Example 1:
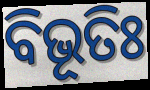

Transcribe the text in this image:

ବିଭୂତିଃ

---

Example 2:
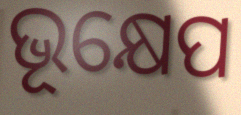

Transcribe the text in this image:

ଭୂକ୍ଷେପ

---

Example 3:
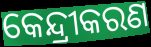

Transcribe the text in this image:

କେନ୍ଦ୍ରୀକରଣ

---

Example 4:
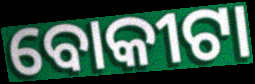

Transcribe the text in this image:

ବୋକୀଟା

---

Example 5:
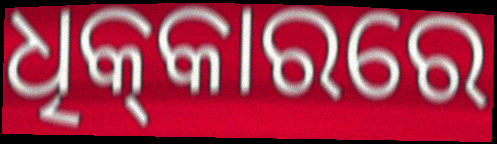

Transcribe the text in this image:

ଧିକ୍‌କାରରେ